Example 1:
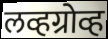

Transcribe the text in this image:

लव्हग्रोव्ह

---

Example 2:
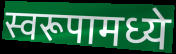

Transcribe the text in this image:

स्वरूपामध्ये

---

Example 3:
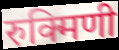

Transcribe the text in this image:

रुक्‍मिणी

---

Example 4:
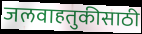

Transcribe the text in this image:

जलवाहतुकीसाठी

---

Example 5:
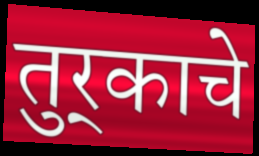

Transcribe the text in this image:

तुर्काचे